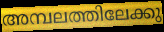
അമ്പലത്തിലേക്കു